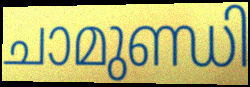
ചാമുണ്ഡി